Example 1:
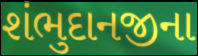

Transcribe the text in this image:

શંભુદાનજીના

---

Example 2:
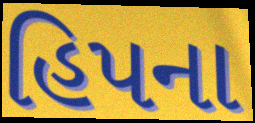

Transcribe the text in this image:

હિપના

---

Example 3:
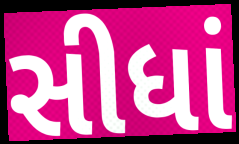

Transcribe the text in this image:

સીધાં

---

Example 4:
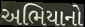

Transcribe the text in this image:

અભિયાનો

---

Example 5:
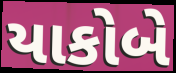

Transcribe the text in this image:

યાકોબે